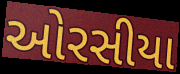
ઓરસીયા